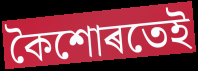
কৈশোৰতেই